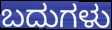
ಬದುಗಳು